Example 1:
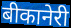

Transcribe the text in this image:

बीकानेरी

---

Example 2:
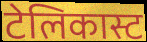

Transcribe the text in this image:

टेलिकास्ट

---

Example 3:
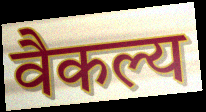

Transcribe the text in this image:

वैकल्य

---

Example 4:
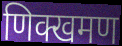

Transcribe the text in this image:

णिक्खमण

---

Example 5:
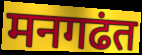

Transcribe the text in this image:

मनगढंत